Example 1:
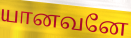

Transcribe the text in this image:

யானவனே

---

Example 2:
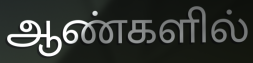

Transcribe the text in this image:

ஆண்களில்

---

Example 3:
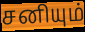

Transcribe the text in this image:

சனியும்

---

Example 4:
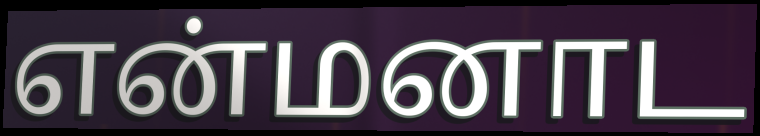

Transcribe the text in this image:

என்மனாட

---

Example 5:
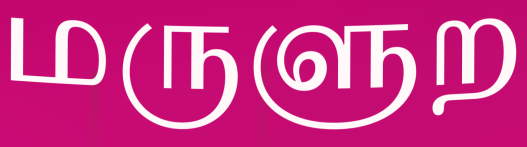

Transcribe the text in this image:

மருளுற